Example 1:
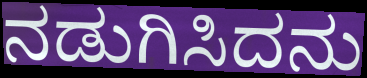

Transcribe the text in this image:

ನಡುಗಿಸಿದನು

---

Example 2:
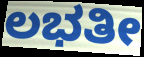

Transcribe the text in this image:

ಲಭತೀ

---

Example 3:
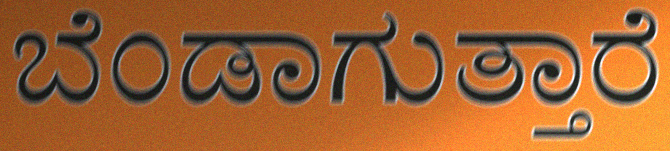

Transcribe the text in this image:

ಬೆಂಡಾಗುತ್ತಾರೆ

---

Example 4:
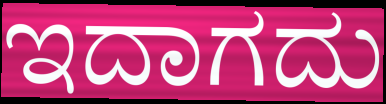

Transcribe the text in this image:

ಇದಾಗದು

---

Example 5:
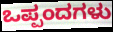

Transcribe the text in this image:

ಒಪ್ಪಂದಗಳು